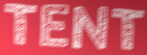
TENT